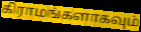
கிராமங்களாகவும்